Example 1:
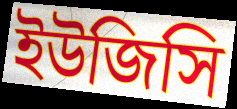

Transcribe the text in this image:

ইউজিসি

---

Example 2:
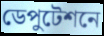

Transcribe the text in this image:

ডেপুটেশনে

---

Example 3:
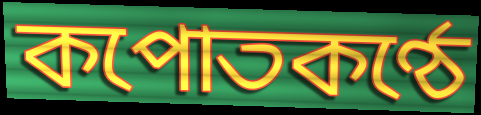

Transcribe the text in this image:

কপোতকণ্ঠে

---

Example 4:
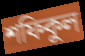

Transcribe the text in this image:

শফিকুল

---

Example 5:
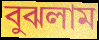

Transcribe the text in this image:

বুঝলাম